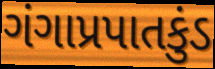
ગંગાપ્રપાતકુંડ